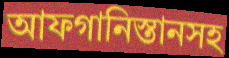
আফগানিস্তানসহ